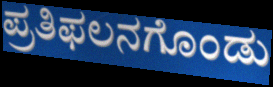
ಪ್ರತಿಫಲನಗೊಂಡು